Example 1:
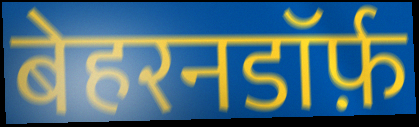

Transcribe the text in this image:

बेहरनडॉर्फ़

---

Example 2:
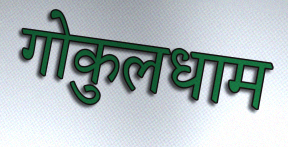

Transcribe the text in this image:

गोकुलधाम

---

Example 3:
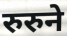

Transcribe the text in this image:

रुरुने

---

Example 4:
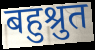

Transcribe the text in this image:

बहुश्रुत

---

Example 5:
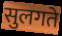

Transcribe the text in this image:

सुलगते